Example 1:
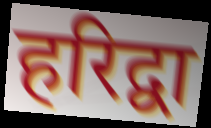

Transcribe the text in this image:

हरिद्वा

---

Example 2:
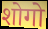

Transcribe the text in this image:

शोगो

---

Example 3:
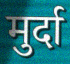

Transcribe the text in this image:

मुर्दा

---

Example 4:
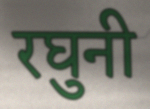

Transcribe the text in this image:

रघुनी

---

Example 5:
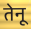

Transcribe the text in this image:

तेनू